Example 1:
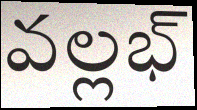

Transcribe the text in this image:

వల్లభ్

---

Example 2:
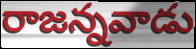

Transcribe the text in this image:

రాజన్నవాడు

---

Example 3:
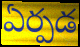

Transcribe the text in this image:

ఏర్పడ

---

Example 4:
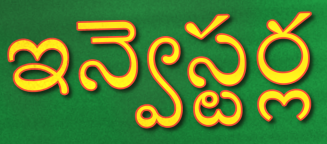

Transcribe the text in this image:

ఇన్వెస్టర్ల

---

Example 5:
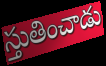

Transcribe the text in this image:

స్తుతించాడు